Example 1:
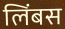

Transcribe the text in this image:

लिंबस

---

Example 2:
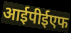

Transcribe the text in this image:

आईपीईएफ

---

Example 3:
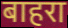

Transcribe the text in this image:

बाहरा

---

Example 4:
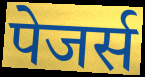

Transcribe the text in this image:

पेजर्स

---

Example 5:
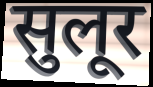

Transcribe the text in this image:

सुलूर